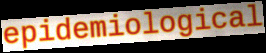
epidemiological